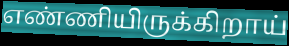
எண்ணியிருக்கிறாய்